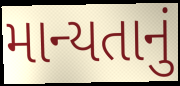
માન્યતાનું